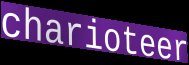
charioteer